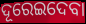
ଦୂରେଇଦେବା